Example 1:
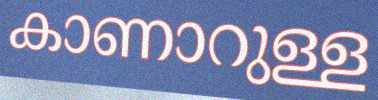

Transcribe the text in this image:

കാണാറുള്ള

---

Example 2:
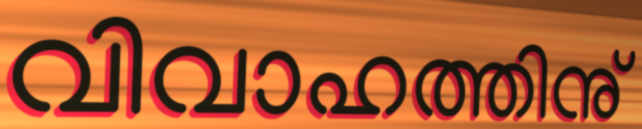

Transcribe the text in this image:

വിവാഹത്തിനു്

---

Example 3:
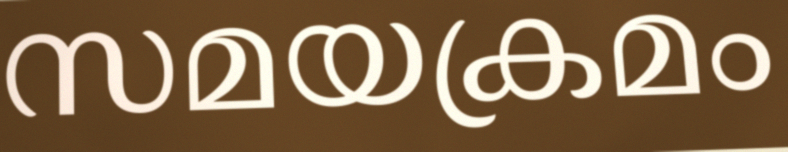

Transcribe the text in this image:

സമയക്രമം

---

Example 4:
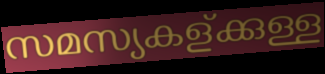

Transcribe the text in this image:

സമസ്യകള്ക്കുള്ള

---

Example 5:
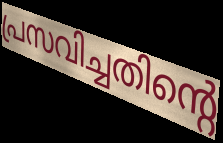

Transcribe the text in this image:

പ്രസവിച്ചതിന്റെ